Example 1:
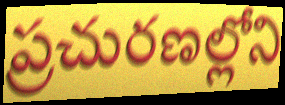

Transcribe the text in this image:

ప్రచురణల్లోని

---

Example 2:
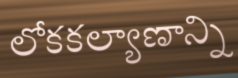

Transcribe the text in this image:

లోకకల్యాణాన్ని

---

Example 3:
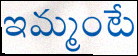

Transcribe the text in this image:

ఇమ్మంటే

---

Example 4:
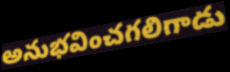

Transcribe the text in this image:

అనుభవించగలిగాడు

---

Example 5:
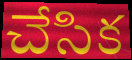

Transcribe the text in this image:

చేసిక